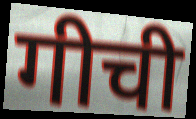
गीची